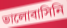
ভালোবাসিনি